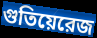
গুতিয়েরেজ